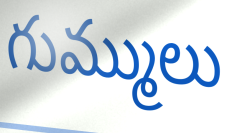
గుమ్ములు